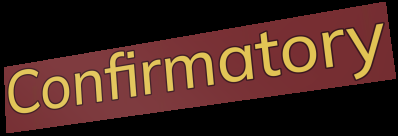
Confirmatory